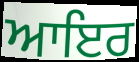
ਆਇਰ